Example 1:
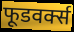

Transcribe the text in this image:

फूडवर्क्स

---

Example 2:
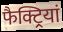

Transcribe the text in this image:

फैक्ट्रियां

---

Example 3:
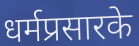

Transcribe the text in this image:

धर्मप्रसारके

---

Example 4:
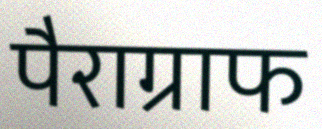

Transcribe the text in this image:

पैराग्राफ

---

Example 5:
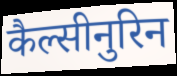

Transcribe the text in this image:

कैल्सीनुरिन